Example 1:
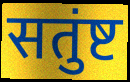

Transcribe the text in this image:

सतुंष्ट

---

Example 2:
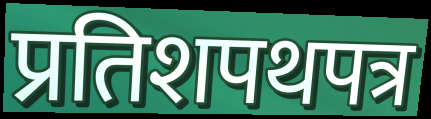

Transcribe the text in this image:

प्रतिशपथपत्र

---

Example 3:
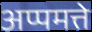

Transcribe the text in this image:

अप्पमत्ते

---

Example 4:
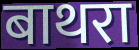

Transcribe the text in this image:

बाथरा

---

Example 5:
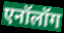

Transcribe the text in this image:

एनॉलॉग